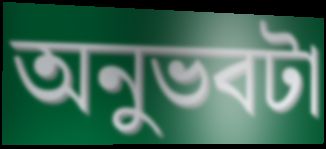
অনুভবটা